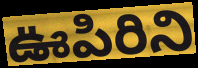
ఊపిరిని